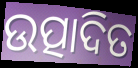
ଉତ୍ପାଦିତ